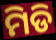
ମିଡି